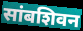
सांबशिवन